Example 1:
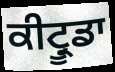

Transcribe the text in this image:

ਕੀਟ੍ਰੂਡਾ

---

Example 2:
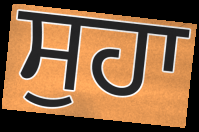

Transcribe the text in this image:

ਸੁਹਾ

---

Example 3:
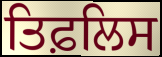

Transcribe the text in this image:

ਤਿਫ਼ਲਿਸ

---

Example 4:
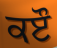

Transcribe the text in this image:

ਕੲੌ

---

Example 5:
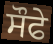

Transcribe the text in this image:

ਸੌਫੇ